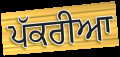
ਪੱਕਰੀਆ